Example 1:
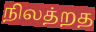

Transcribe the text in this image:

நிலத்றத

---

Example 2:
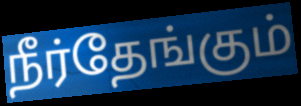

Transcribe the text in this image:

நீர்தேங்கும்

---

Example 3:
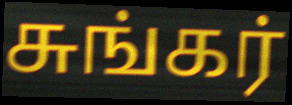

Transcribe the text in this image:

சுங்கர்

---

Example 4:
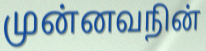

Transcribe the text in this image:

முன்னவநின்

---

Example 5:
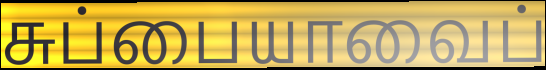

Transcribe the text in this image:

சுப்பையாவைப்